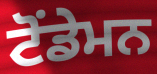
ਟੋਂਡੇਮਨ